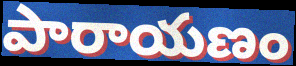
పారాయణం